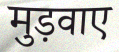
मुड़वाए